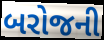
બરોજની